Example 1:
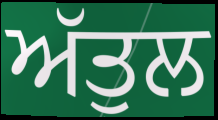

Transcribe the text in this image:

ਅੱਤੁਲ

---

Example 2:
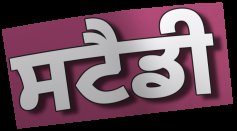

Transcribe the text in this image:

ਸਟੈਡੀ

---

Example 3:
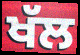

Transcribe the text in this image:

ਖੱਲ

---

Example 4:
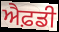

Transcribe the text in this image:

ਐਫ਼ਡੀ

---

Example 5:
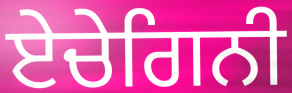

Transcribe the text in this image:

ਏਚੇਗਿਨੀ